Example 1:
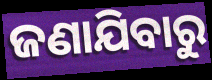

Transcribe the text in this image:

ଜଣାଯିବାରୁ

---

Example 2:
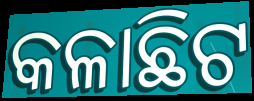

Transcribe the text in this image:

କଳାଛିଟ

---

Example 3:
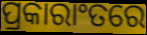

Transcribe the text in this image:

ପ୍ରକାରାଂତରେ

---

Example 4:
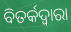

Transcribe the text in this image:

ବିତର୍କଦ୍ୱାରା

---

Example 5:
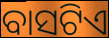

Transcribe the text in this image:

ବାସଟିଏ